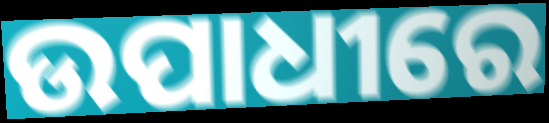
ଉପାଧୀରେ